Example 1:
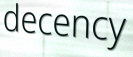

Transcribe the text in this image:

decency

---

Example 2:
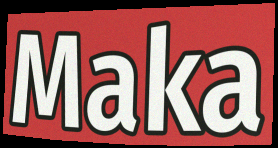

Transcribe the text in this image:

Maka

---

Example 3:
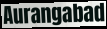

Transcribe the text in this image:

Aurangabad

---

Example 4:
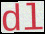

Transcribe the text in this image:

dl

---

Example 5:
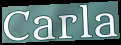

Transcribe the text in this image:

Carla